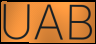
UAB